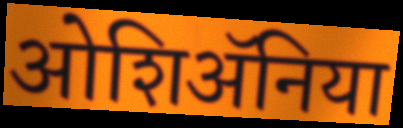
ओशिॲनिया